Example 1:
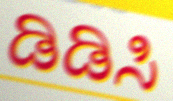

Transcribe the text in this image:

ಡಿಡಿಸಿ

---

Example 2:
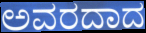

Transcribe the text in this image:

ಅವರದಾದ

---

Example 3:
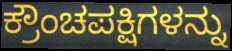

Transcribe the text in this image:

ಕ್ರೌಂಚಪಕ್ಷಿಗಳನ್ನು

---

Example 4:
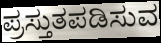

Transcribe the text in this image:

ಪ್ರಸ್ತುತಪಡಿಸುವ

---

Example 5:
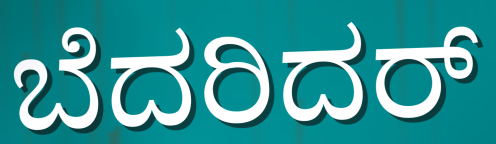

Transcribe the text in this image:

ಬೆದರಿದರ್